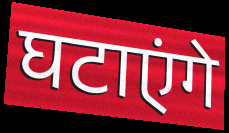
घटाएंगे